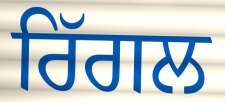
ਰਿੱਗਲ